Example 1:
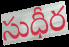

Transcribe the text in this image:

సుధీర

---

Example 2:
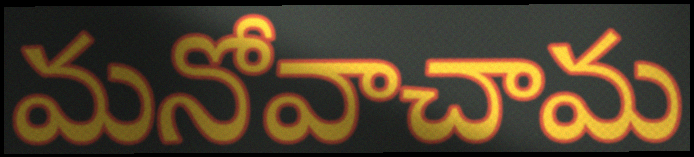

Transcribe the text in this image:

మనోవాచామ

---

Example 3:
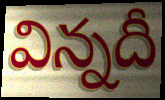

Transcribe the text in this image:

విన్నదీ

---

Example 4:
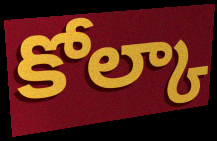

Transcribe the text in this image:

కోల్కా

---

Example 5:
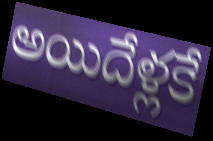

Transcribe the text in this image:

అయిదేళ్లకే